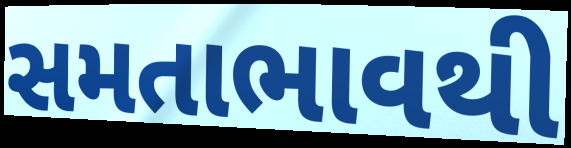
સમતાભાવથી